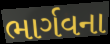
ભાર્ગવના